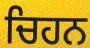
ਚਿਹਨ